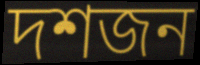
দশজন